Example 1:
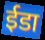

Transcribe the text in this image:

ईडा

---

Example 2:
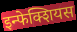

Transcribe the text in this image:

इन्फेक्शियस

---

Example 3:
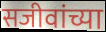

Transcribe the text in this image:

सजीवांच्या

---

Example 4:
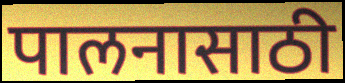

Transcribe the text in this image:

पालनासाठी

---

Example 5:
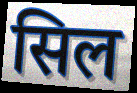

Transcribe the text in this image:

सिल